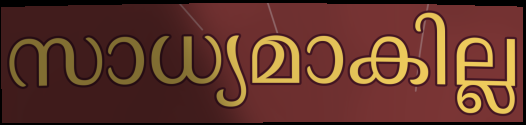
സാധ്യമാകില്ല